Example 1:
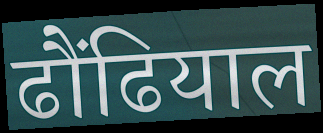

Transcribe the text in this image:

ढौंढियाल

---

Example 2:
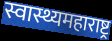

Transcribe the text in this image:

स्वास्थ्यमहाराष्ट्र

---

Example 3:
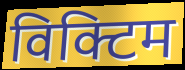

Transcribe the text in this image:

विक्टिम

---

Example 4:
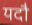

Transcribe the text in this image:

यदौ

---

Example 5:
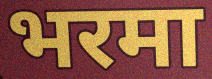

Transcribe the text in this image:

भरमा